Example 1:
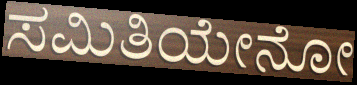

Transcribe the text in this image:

ಸಮಿತಿಯೇನೋ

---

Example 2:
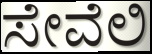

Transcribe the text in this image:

ಸೇವೆಲಿ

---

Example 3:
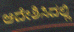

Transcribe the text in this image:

ಆದೇಶಿಸಿದಲ್ಲಿ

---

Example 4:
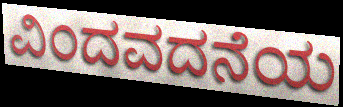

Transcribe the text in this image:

ವಿಂದವದನೆಯ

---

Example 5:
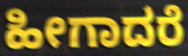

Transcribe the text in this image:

ಹೀಗಾದರೆ